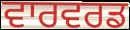
ਵਾਰਵਰਡ